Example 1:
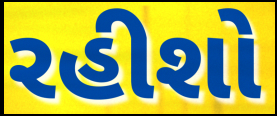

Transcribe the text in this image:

રહીશો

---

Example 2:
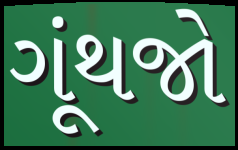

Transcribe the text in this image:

ગૂંથજો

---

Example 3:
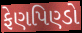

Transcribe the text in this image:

ફેણપિણ્ડો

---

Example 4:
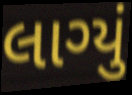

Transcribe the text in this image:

લાગ્યું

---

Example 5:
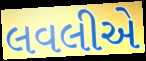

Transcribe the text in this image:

લવલીએ